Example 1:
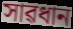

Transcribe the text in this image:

সাৱধান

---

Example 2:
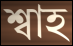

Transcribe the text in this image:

শ্বাহ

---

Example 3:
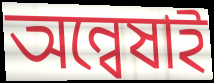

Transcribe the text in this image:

অন্বেষাই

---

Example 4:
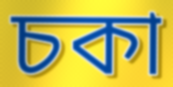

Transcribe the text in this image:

চকা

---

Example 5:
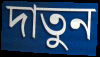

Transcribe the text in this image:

দাতুন